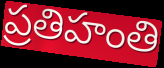
ప్రతిహంతి